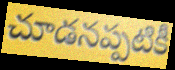
చూడనప్పటికీ